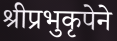
श्रीप्रभुकृपेने